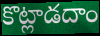
కొట్లాడదాం